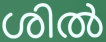
ശിൽ